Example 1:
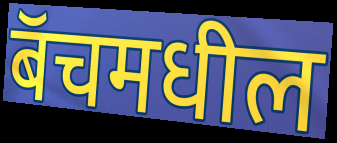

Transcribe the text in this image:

बॅचमधील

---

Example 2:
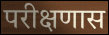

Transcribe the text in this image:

परीक्षणास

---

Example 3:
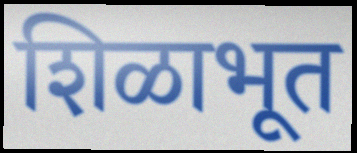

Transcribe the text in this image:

शिळाभूत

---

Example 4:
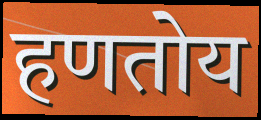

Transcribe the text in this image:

हणतोय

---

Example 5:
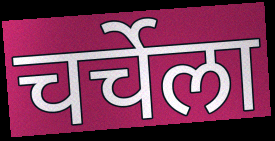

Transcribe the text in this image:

चर्चेला